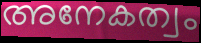
അനേകത്വം